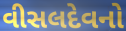
વીસલદેવનો